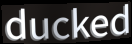
ducked